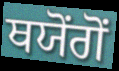
ਥਯੋਂਗੋਂ